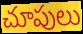
చూపులు